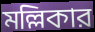
মল্লিকার